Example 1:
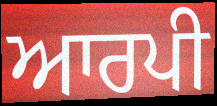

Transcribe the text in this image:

ਆਰਪੀ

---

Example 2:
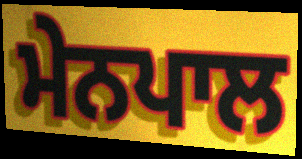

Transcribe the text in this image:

ਮੇਨਪਾਲ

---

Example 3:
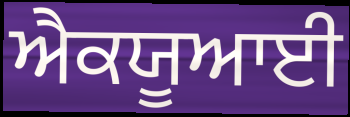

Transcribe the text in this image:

ਐਕਯੂਆਈ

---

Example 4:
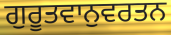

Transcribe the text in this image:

ਗੁਰੂਤਵਾਨੁਵਰਤਨ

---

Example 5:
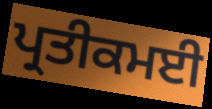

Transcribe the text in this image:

ਪ੍ਰਤੀਕਮਈ